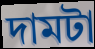
দামটা